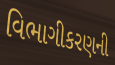
વિભાગીકરણની